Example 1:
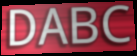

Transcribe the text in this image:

DABC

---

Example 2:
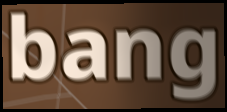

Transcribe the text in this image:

bang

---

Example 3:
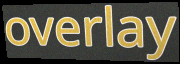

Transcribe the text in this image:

overlay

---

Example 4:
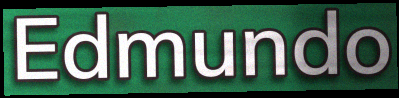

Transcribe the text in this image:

Edmundo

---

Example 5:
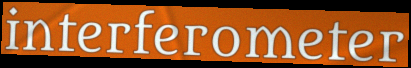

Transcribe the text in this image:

interferometer